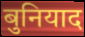
बुनियाद